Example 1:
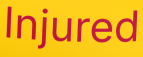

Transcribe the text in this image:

Injured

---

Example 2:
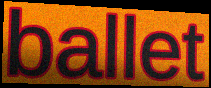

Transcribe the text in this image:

ballet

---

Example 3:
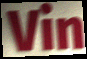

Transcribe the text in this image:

Vin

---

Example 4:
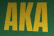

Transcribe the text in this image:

AKA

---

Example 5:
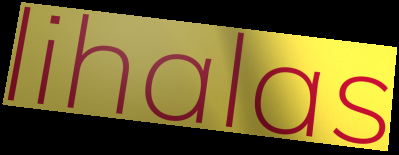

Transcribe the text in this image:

lihalas